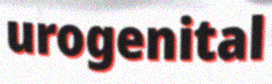
urogenital